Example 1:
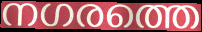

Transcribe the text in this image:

നഗരത്തെ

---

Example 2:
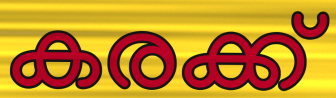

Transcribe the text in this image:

കരക്ക്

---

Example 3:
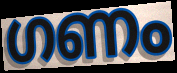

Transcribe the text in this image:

ഗണം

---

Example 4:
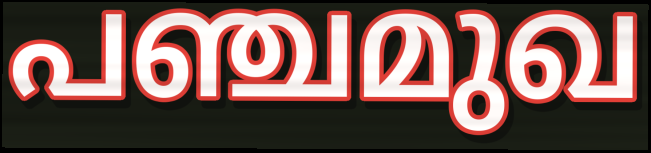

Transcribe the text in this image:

പഞ്ചമുഖ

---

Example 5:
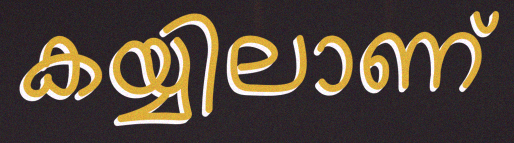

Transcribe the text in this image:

കയ്യിലാണ്